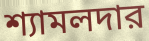
শ্যামলদার